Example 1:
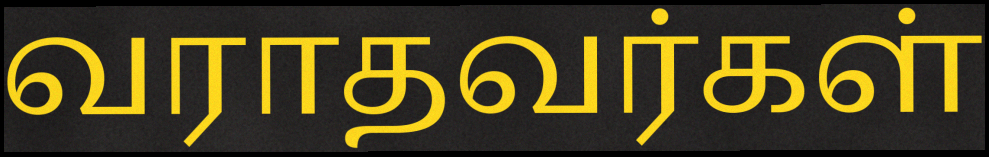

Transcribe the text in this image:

வராதவர்கள்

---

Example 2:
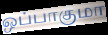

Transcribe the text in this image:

ஒப்பாகுமா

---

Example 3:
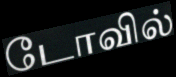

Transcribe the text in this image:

டோவில்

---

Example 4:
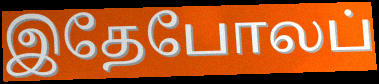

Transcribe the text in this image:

இதேபோலப்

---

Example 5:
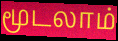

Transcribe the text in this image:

மூடலாம்